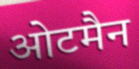
ओटमैन